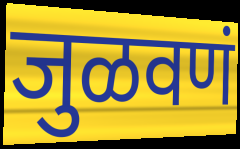
जुळवणं